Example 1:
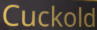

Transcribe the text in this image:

Cuckold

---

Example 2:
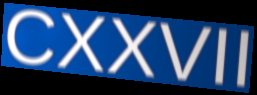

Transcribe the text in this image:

CXXVII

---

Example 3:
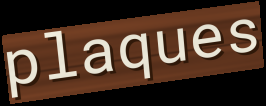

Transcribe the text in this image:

plaques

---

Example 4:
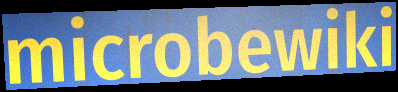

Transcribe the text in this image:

microbewiki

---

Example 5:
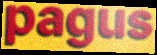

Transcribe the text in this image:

pagus